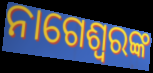
ନାଗେଶ୍ୱରଙ୍କ